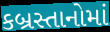
કબ્રસ્તાનોમાં